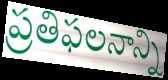
ప్రతిఫలనాన్ని